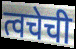
त्वचेची